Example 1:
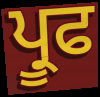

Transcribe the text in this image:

ਪ੍ਰੂਫ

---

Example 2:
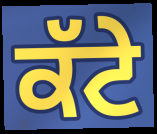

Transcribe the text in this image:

ਕੱਟੇ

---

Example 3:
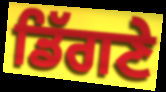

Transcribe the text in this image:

ਡਿੱਗਣੇ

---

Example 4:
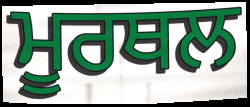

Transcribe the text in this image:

ਮੂਰਥਲ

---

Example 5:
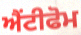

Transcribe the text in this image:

ਐਂਟੀਫੋਮ